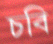
চবি